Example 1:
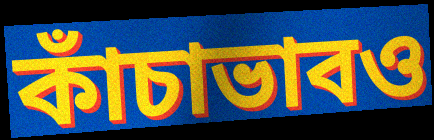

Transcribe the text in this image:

কাঁচাভাবও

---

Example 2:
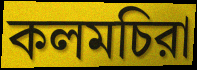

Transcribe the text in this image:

কলমচিরা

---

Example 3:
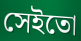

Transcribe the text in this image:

সেইতো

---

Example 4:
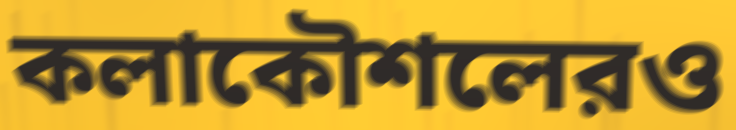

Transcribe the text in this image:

কলাকৌশলেরও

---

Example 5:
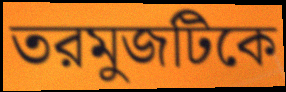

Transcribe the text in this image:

তরমুজটিকে